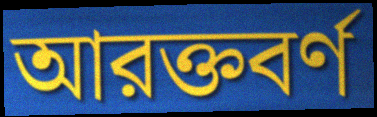
আরক্তবর্ণ